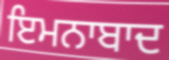
ਇਮਨਾਬਾਦ